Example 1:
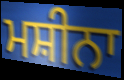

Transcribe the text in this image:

ਮਸ਼ੀਨਾ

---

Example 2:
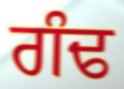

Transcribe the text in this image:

ਗੰਢ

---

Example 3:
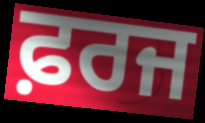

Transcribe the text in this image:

ਫ਼ਰਜ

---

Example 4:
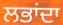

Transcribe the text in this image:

ਲਭਾਂਦਾ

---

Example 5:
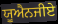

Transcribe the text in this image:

ਯੂਐਨਜੀਏ